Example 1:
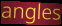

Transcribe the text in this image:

angles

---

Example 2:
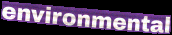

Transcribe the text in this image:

environmental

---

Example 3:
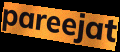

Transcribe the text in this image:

pareejat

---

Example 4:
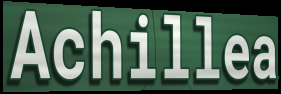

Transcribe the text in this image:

Achillea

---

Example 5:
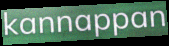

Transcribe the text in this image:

kannappan